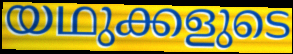
യഥുക്കളുടെ